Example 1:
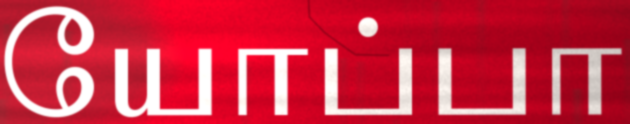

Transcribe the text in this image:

யோப்பா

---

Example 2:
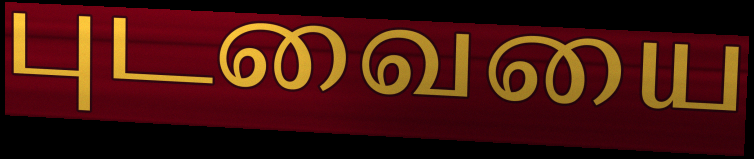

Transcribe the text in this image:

புடவையை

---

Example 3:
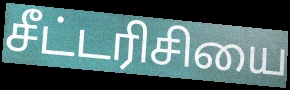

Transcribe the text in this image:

சீட்டரிசியை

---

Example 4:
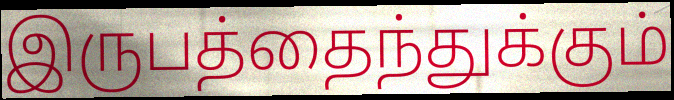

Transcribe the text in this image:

இருபத்தைந்துக்கும்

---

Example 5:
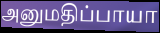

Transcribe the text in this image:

அனுமதிப்பாயா